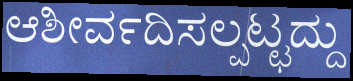
ಆಶೀರ್ವದಿಸಲ್ಪಟ್ಟದ್ದು